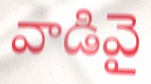
వాడివై